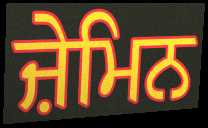
ਜ਼ੇਮਿਨ